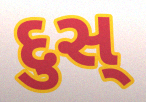
દુસ્